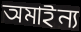
অমাইন্য